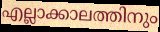
എല്ലാക്കാലത്തിനും